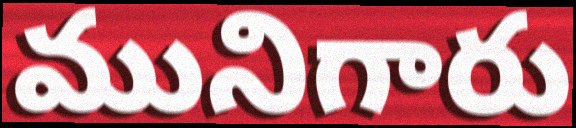
మునిగారు